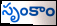
సృంకాం